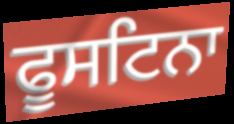
ਫੂਸਟਿਨਾ